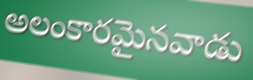
అలంకారమైనవాడు